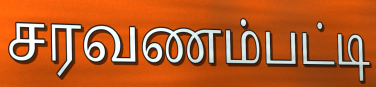
சரவணம்பட்டி